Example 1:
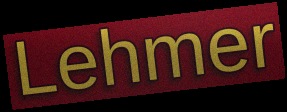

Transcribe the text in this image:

Lehmer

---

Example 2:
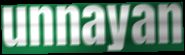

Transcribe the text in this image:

unnayan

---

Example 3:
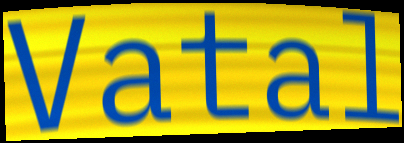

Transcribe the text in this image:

Vatal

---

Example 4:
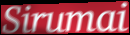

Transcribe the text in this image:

Sirumai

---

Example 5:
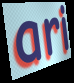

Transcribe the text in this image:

ari